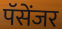
पॅसेंजर